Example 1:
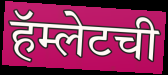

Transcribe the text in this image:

हॅम्लेटची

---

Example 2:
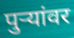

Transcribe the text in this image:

पुऱ्यांवर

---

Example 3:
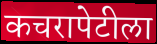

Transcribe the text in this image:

कचरापेटीला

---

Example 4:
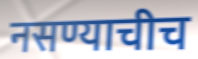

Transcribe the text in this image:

नसण्याचीच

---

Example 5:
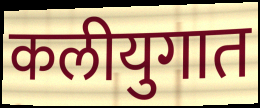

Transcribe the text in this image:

कलीयुगात